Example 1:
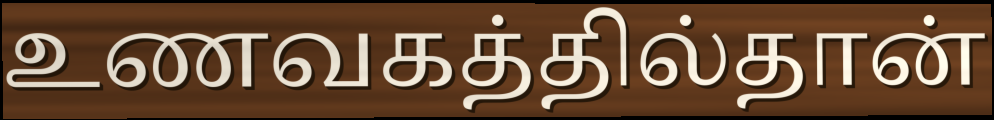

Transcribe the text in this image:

உணவகத்தில்தான்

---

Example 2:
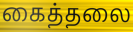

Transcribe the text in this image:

கைத்தலை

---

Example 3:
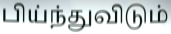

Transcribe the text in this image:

பிய்ந்துவிடும்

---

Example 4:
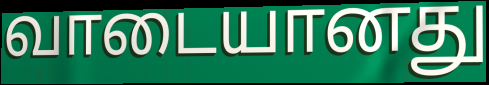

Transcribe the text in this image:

வாடையானது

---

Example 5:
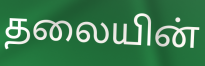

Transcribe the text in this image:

தலையின்